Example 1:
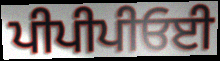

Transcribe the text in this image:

ਪੀਪੀਪੀਓਈ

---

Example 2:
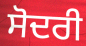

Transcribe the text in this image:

ਸੋਦਰੀ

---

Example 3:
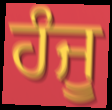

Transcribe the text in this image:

ਹੰਜੂ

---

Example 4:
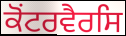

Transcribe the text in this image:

ਕੋਂਟਰਵੈਰਸਿ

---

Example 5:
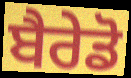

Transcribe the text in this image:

ਬੈਰੇਡੋ